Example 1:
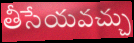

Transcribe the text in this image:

తీసేయవచ్చు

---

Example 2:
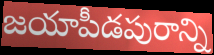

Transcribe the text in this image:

జయాపీడపురాన్ని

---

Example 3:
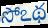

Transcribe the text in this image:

సోఽథ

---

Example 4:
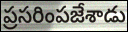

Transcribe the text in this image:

ప్రసరింపజేశాడు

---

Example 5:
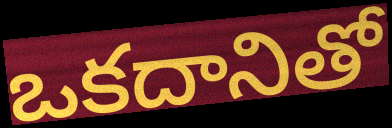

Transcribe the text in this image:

ఒకదానితో